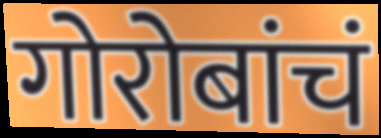
गोरोबांचं